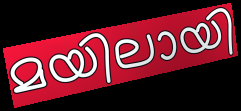
മയിലായി